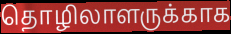
தொழிலாளருக்காக